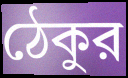
ঠেকুর